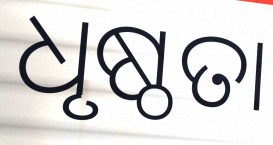
ଧୃଷ୍ଠତା